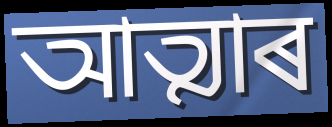
আত্মাৰ